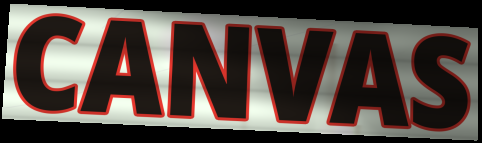
CANVAS